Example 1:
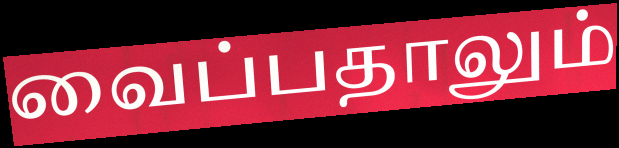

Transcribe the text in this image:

வைப்பதாலும்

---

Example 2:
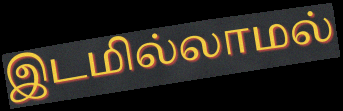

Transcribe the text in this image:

இடமில்லாமல்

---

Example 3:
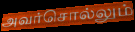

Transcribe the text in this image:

அவர்சொல்லும்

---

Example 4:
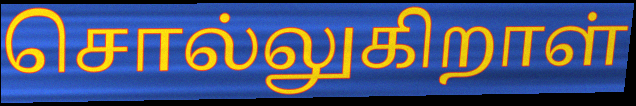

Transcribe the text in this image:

சொல்லுகிறாள்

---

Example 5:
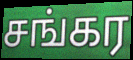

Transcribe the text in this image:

சங்கர